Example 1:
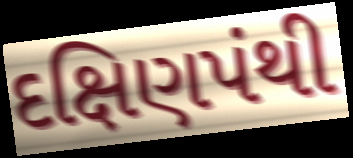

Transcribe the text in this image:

દક્ષિણપંથી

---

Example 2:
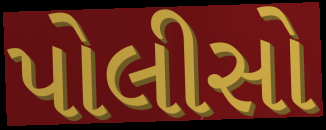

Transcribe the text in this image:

પોલીસો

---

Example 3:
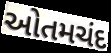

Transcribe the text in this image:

ઓતમચંદ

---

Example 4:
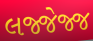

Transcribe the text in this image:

લજ્જેજ્જ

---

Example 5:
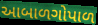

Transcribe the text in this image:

આબાળગોપાળ